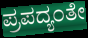
ಪ್ರಪದ್ಯಂತೇ